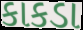
કાકડા